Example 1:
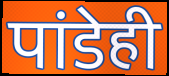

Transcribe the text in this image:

पांडेही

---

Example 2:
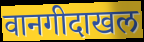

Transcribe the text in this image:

वानगीदाखल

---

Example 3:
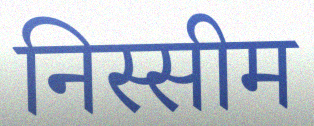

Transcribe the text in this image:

निस्सीम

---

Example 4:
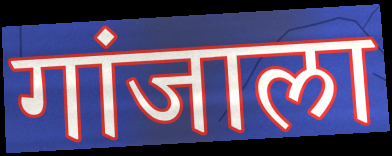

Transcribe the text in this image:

गांजाला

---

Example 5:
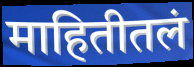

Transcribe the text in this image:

माहितीतलं